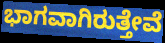
ಭಾಗವಾಗಿರುತ್ತೇವೆ